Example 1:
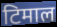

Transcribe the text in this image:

टिमाल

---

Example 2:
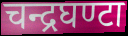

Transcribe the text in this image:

चन्द्रघण्टा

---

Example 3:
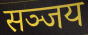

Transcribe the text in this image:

सञ्जय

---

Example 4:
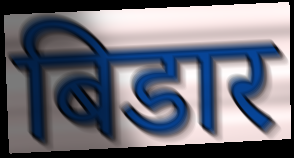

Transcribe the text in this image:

बिडार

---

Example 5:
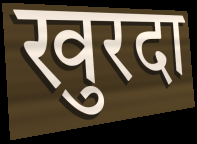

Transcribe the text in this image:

खुरदा